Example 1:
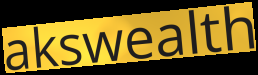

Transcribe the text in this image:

akswealth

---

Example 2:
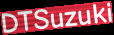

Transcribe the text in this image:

DTSuzuki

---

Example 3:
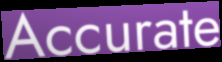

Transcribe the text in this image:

Accurate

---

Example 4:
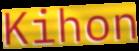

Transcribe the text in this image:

Kihon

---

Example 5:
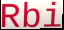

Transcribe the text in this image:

Rbi